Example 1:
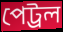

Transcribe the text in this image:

পেট্রল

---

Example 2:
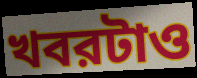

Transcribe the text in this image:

খবরটাও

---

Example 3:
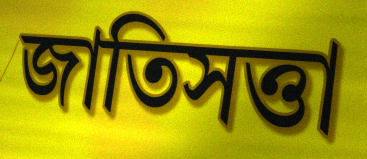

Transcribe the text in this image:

জাতিসত্তা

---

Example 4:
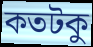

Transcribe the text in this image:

কতটকু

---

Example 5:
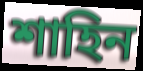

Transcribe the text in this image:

শাহিন